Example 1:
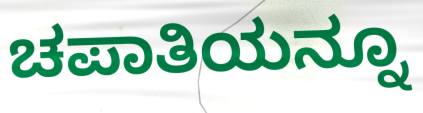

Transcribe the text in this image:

ಚಪಾತಿಯನ್ನೂ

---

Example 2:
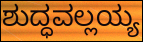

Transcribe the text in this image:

ಶುದ್ಧವಲ್ಲಯ್ಯ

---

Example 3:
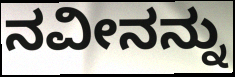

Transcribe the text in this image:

ನವೀನನ್ನು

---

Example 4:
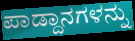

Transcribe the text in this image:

ಪಾಡ್ದಾನಗಳನ್ನು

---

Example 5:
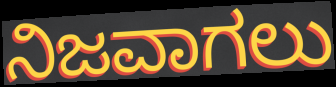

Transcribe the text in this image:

ನಿಜವಾಗಲು